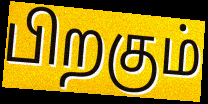
பிறகும்